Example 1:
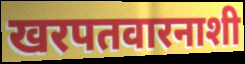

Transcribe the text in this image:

खरपतवारनाशी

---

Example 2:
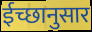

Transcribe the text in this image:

ईच्छानुसार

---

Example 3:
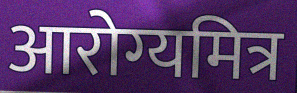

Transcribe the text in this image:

आरोग्यमित्र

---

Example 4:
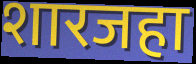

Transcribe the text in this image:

शारजहा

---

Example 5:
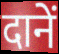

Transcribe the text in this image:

दानें